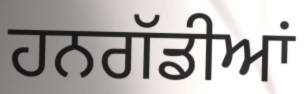
ਹਨਗੱਡੀਆਂ